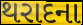
થરાદના